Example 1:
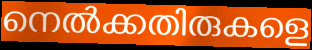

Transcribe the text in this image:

നെൽക്കതിരുകളെ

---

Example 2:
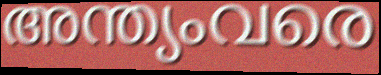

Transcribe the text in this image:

അന്ത്യംവരെ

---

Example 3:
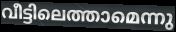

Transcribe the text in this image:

വീട്ടിലെത്താമെന്നു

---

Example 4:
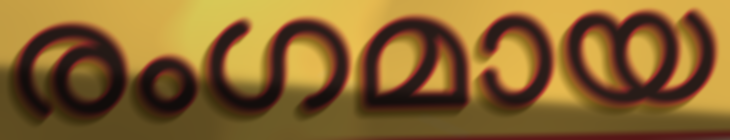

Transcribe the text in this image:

രംഗമായ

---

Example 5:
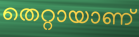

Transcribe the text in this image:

തെറ്റായാണ്